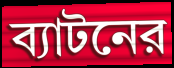
ব্যাটনের